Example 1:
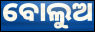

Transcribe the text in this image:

ବୋଲୁଅ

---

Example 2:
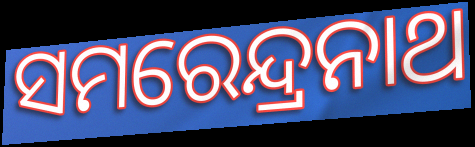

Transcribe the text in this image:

ସମରେନ୍ଦ୍ରନାଥ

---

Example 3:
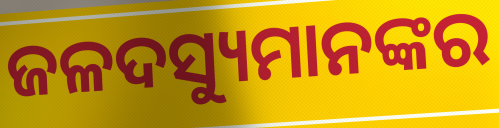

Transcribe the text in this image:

ଜଳଦସ୍ୟୁମାନଙ୍କର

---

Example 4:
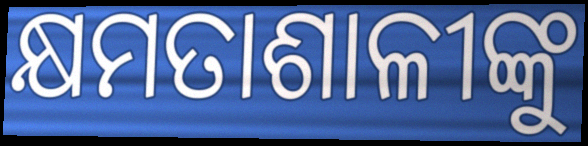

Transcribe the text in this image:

କ୍ଷମତାଶାଳୀଙ୍କୁ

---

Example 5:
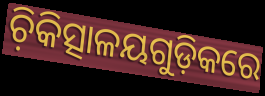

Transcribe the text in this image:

ଚ଼ିକିତ୍ସାଳୟଗୁଡ଼ିକରେ